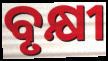
ବୃକ୍ଷୀ